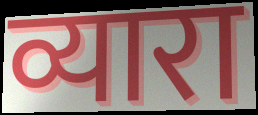
व्यारा